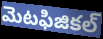
మెటఫిజికల్